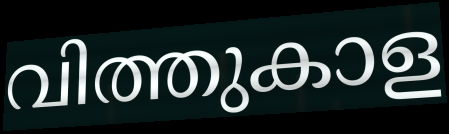
വിത്തുകാള